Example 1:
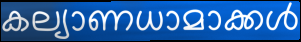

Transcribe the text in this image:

കല്യാണധാമാക്കൾ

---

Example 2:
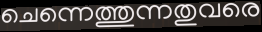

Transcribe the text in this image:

ചെന്നെത്തുന്നതുവരെ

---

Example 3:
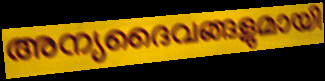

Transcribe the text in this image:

അന്യദൈവങ്ങളുമായി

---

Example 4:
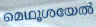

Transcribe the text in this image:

മെഥൂശയേൽ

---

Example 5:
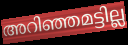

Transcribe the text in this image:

അറിഞ്ഞമട്ടില്ല